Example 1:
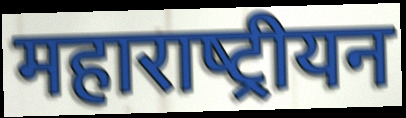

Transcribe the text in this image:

महाराष्ट्रीयन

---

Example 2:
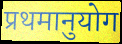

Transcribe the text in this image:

प्रथमानुयोग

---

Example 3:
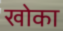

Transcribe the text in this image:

खोका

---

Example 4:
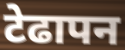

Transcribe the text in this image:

टेढापन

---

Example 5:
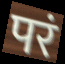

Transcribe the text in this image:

परं